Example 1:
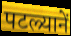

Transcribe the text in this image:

पटल्यानें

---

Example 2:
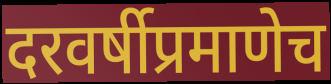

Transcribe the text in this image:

दरवर्षीप्रमाणेच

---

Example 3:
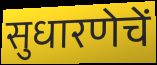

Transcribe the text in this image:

सुधारणेचें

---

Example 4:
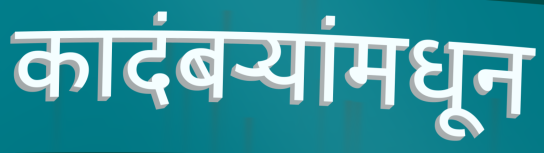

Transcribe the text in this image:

कादंबर्‍यांमधून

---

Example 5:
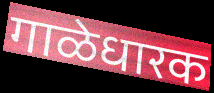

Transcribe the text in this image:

गाळेधारक